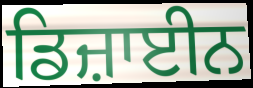
ਡਿਜ਼ਾਈਨ